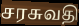
சரசுவதி